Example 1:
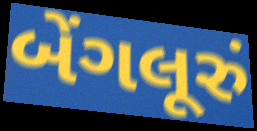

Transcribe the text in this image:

બેંગલૂરું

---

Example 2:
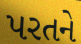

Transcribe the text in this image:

પરતને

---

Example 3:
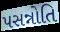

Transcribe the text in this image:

પસન્નોતિ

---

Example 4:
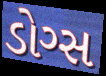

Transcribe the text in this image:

ડોગ્સ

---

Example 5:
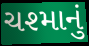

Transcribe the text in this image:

ચશ્માનું